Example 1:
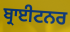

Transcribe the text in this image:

ਬ੍ਰਾਈਟਨਰ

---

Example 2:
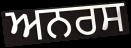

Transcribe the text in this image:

ਅਨਰਸ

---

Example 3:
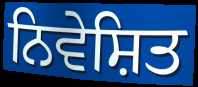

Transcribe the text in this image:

ਨਿਵੇਸ਼ਿਤ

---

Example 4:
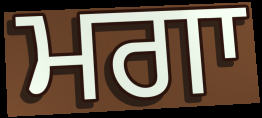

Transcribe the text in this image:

ਮਗਾ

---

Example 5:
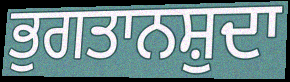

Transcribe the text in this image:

ਭੁਗਤਾਨਸ਼ੁਦਾ